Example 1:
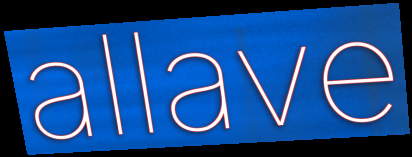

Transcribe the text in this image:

allave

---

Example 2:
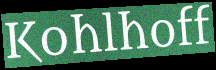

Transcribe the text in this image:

Kohlhoff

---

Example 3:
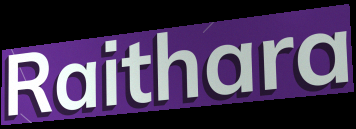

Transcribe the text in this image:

Raithara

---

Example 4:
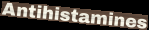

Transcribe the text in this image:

Antihistamines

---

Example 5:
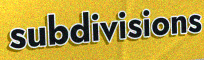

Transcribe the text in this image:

subdivisions